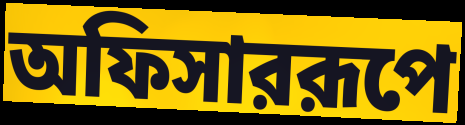
অফিসাররূপে